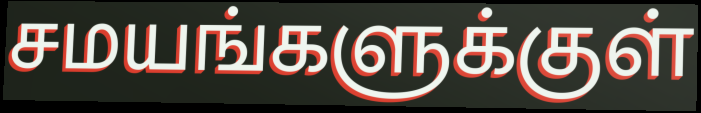
சமயங்களுக்குள்